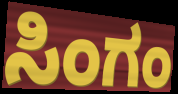
ಸಿಂಗಂ